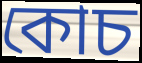
কোচ